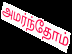
அமர்ந்தோம்